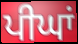
ਪੀਘਾਂ